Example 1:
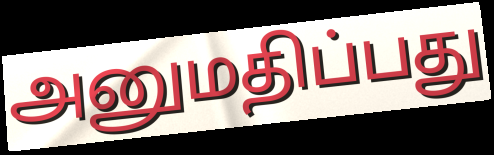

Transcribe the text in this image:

அனுமதிப்பது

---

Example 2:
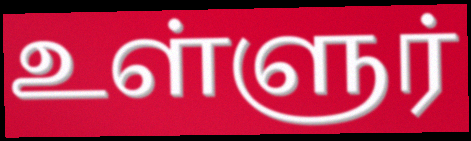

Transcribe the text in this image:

உள்ளுர்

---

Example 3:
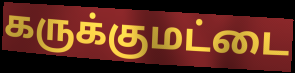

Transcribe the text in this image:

கருக்குமட்டை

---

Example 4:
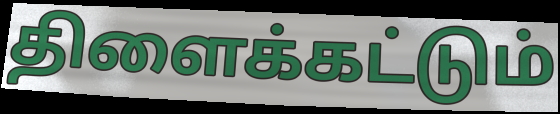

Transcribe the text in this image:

திளைக்கட்டும்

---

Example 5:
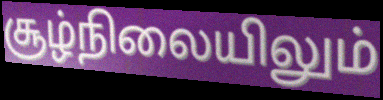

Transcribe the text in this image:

சூழ்நிலையிலும்